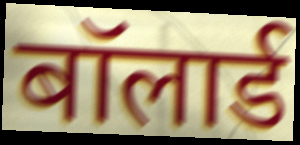
बॉलार्ड